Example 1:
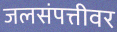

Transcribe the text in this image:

जलसंपत्तीवर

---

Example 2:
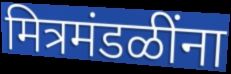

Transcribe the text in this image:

मित्रमंडळींना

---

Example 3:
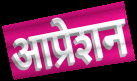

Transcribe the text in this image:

आप्रेशन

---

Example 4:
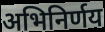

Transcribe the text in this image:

अभिनिर्णय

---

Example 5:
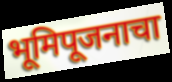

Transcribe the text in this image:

भूमिपूजनाचा